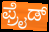
ಫ್ರೈಡ್